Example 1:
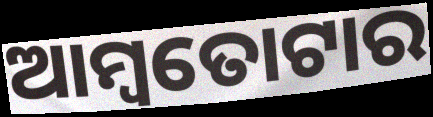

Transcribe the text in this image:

ଆମ୍ବତୋଟାର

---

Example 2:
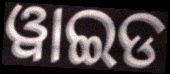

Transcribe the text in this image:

ୱାଇଡ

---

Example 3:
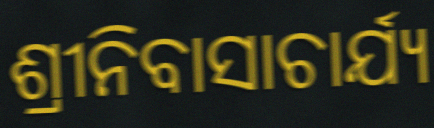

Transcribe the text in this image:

ଶ୍ରୀନିବାସାଚାର୍ଯ୍ୟ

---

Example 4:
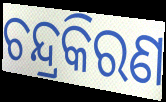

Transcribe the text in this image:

ଚନ୍ଦ୍ରକିରଣ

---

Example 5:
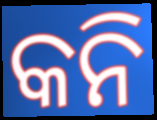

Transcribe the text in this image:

କନି